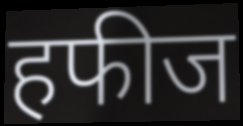
हफीज